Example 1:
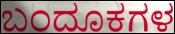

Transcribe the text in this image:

ಬಂದೂಕಗಳ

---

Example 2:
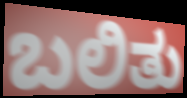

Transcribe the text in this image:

ಬಲಿತು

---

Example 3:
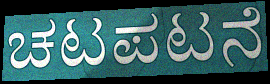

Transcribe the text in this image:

ಚಟಪಟನೆ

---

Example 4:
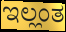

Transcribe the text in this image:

ಇಲ್ಲಂತ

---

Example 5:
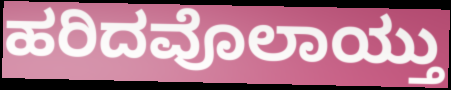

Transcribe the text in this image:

ಹರಿದವೊಲಾಯ್ತು